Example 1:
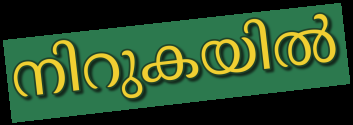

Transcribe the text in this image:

നിറുകയിൽ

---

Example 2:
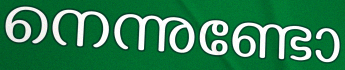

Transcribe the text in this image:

നെന്നുണ്ടോ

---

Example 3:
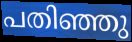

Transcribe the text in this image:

പതിഞ്ഞു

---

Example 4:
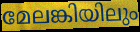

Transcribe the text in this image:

മേലങ്കിയിലും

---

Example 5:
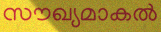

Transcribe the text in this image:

സൗഖ്യമാകൽ